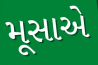
મૂસાએ